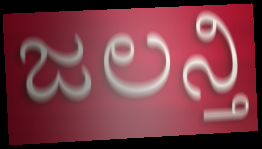
ಜಲನ್ತಿ